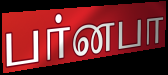
பர்னபா